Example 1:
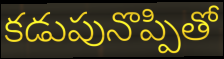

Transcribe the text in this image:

కడుపునొప్పితో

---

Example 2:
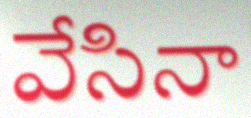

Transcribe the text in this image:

వేసినా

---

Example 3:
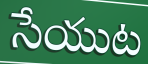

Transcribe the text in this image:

సేయుట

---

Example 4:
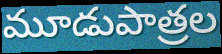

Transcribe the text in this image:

మూడుపాత్రల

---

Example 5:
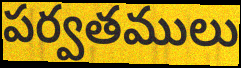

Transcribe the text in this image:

పర్వతములు